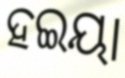
ହଇୟା